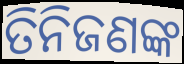
ତିନିଜଣଙ୍କ